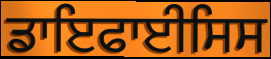
ਡਾਇਫਾਈਸਿਸ